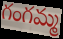
గంగమ్మ